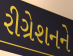
રીગ્રેશનને